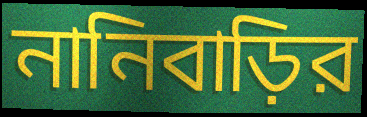
নানিবাড়ির